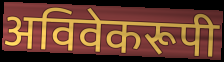
अविवेकरूपी